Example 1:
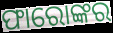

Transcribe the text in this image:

ଫାରୋଙ୍କର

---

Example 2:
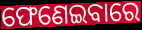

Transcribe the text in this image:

ଫେଣେଇବାରେ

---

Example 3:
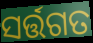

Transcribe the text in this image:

ସର୍ତ୍ତଗତ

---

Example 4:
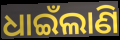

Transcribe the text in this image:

ଧାଇଁଲାଣି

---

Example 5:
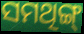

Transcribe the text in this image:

ସମଥିଙ୍ଗ୍